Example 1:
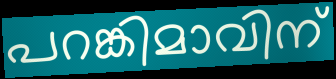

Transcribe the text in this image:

പറങ്കിമാവിന്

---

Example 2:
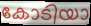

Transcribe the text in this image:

കോടിയാ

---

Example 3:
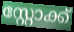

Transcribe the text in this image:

സ്റ്റോക്ക്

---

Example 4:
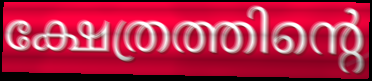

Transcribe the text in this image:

ക്ഷേത്രത്തിന്റെ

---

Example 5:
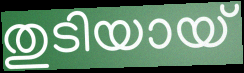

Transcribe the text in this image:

തുടിയായ്